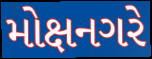
મોક્ષનગરે